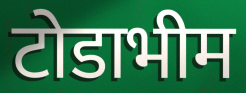
टोडाभीम